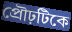
প্রৌঢ়টিকে